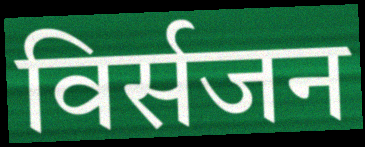
विर्सजन